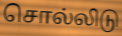
சொல்லிடு